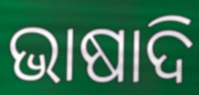
ଭାଷାଦି